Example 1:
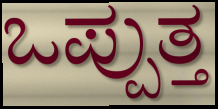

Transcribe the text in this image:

ಒಪ್ಪುತ್ತ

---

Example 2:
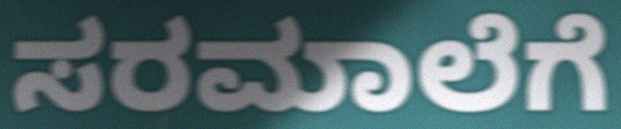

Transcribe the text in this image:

ಸರಮಾಲೆಗೆ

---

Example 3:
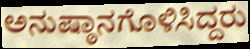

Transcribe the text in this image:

ಅನುಷ್ಠಾನಗೊಳಿಸಿದ್ದರು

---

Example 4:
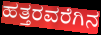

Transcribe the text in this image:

ಹತ್ತರವರೆಗಿನ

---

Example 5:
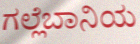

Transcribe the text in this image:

ಗಲ್ಲೆಬಾನಿಯ